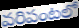
వరిపంటలో